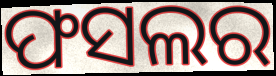
ଫସଲର